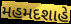
મહમદશાહે